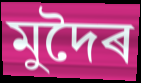
মুদৈৰ